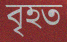
বৃহত